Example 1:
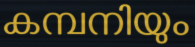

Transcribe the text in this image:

കമ്പനിയും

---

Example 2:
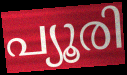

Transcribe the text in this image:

പ്യൂരി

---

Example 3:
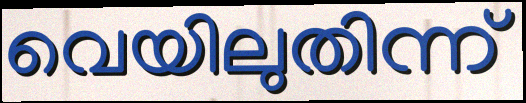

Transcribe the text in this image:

വെയിലുതിന്ന്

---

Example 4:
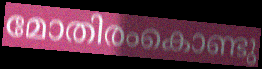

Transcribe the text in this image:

മോതിരംകൊണ്ടു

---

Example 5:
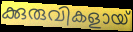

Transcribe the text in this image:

ക്കുരുവികളായ്